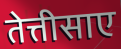
तेत्तीसाए